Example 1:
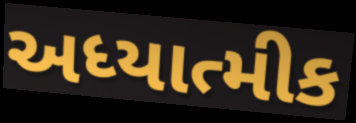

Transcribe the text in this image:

અધ્યાત્મીક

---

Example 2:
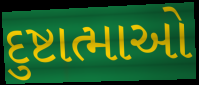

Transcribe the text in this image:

દુષ્ટાત્માઓ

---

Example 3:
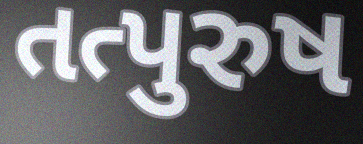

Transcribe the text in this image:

તત્પુરુષ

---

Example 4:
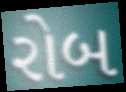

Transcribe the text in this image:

રોબ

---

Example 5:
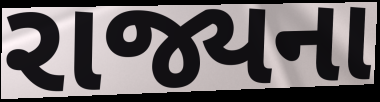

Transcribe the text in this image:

રાજ્યના